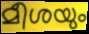
മീശയും